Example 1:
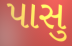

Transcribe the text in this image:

પાસુ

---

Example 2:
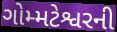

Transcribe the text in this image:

ગોમ્મટેશ્વરની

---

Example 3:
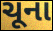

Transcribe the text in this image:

ચૂના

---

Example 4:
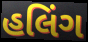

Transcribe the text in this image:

હલિંગ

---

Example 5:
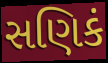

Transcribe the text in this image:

સણિકં